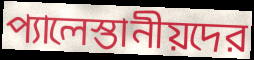
প্যালেস্তানীয়দের